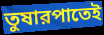
তুষারপাতেই